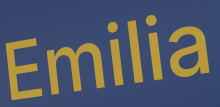
Emilia